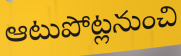
ఆటుపోట్లనుంచి